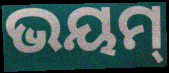
ଭୟମ୍